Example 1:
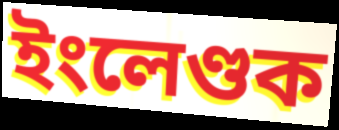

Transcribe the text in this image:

ইংলেণ্ডক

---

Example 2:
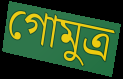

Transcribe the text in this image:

গোমুত্ৰ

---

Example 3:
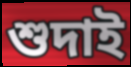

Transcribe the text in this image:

শুদাই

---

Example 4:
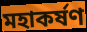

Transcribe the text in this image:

মহাকৰ্ষণ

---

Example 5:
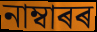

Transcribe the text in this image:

নাম্বাৰৰ